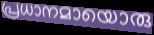
പ്രധാനമായൊരു